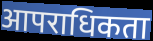
आपराधिकता